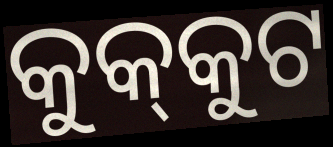
କୁକ୍‍କୁଟ